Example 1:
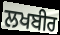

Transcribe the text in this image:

ਲਖਬੀਰ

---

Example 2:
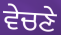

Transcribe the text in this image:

ਵੇਚਣੇ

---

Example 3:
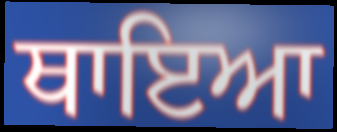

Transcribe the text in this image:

ਥਾਇਆ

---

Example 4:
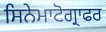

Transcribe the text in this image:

ਸਿਨੇਮਾਟੋਗ੍ਰਾਫਰ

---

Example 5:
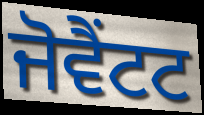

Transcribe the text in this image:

ਜੋਵੈਂਟਟ